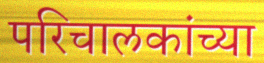
परिचालकांच्या